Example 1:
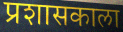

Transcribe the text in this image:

प्रशासकाला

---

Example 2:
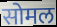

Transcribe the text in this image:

सोमल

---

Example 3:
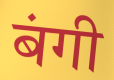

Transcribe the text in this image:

बंगी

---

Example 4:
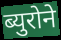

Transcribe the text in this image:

ब्युरोने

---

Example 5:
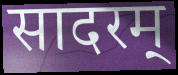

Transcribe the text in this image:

सादरम्